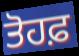
ਤੋਹਫ਼